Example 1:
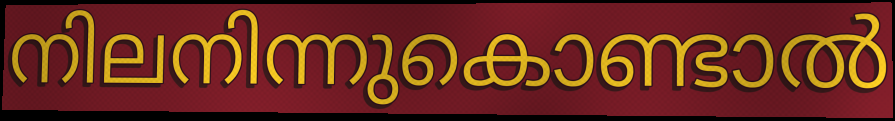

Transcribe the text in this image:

നിലനിന്നുകൊണ്ടാൽ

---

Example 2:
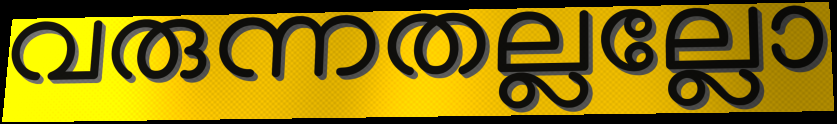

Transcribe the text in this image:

വരുന്നതല്ലല്ലോ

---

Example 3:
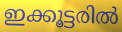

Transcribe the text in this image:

ഇക്കൂട്ടരിൽ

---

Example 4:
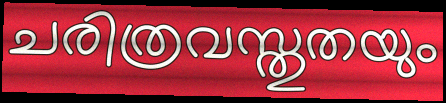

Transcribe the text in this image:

ചരിത്രവസ്തുതയും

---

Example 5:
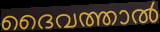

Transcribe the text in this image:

ദൈവത്താൽ